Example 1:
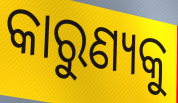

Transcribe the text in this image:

କାରୁଣ୍ୟକୁ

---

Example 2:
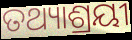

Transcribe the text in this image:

ତଥ୍ୟାଶ୍ରୟୀ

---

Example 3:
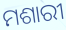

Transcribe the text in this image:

ମଶାରୀ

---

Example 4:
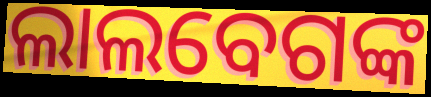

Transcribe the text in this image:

ଲାଲବେଗଙ୍କ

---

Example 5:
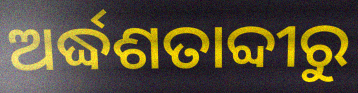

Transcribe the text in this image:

ଅର୍ଦ୍ଧଶତାବ୍ଦୀରୁ